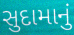
સુદામાનું